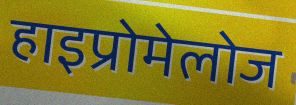
हाइप्रोमेलोज